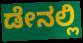
ಡೇನಲ್ಲಿ